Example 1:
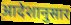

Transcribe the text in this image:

आदेशानुसार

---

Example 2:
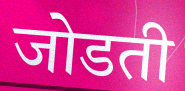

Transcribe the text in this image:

जोडती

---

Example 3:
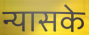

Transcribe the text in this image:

न्यासके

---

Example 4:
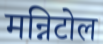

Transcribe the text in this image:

मन्निटोल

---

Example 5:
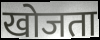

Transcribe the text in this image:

खोजता